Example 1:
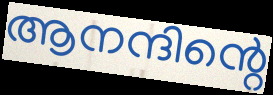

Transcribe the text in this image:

ആനന്ദിന്റെ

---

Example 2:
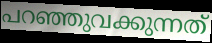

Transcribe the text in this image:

പറഞ്ഞുവക്കുന്നത്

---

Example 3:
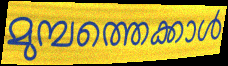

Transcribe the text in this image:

മുമ്പത്തെക്കാൾ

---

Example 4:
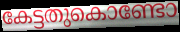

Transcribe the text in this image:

കേട്ടതുകൊണ്ടോ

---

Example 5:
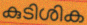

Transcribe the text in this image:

കുടിശിക